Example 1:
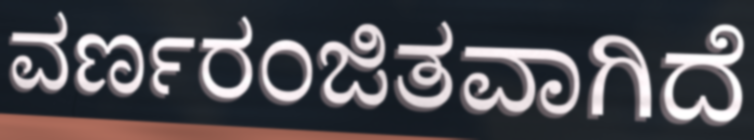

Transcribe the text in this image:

ವರ್ಣರಂಜಿತವಾಗಿದೆ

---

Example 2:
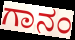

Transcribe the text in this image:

ಗಾನಂ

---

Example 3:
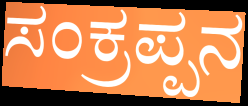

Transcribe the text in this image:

ಸಂಕ್ರಪ್ಪನ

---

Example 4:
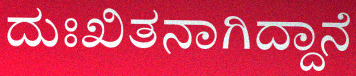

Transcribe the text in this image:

ದುಃಖಿತನಾಗಿದ್ದಾನೆ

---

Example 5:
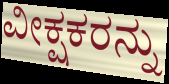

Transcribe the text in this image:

ವೀಕ್ಷಕರನ್ನು